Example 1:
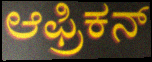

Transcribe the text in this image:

ಆಫ್ರಿಕನ್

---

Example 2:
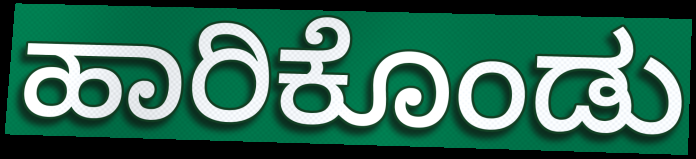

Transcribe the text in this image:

ಹಾರಿಕೊಂಡು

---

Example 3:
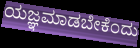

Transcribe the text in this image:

ಯಜ್ಞಮಾಡಬೇಕೆಂದು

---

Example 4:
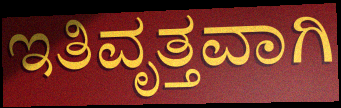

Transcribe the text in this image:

ಇತಿವೃತ್ತವಾಗಿ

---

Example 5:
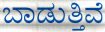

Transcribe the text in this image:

ಬಾಡುತ್ತಿವೆ